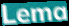
Lema